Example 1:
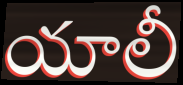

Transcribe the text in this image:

యాలీ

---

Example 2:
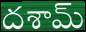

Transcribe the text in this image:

దశామ్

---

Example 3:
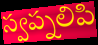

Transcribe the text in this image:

స్వప్నలిపి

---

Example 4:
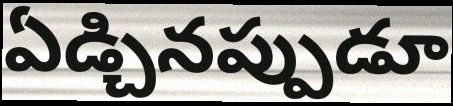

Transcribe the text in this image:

ఏడ్చినప్పుడూ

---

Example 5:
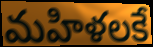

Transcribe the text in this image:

మహిళలకే